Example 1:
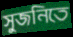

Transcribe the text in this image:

সুজনিতে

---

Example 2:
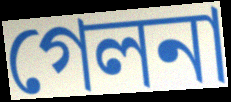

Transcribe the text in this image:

গেলনা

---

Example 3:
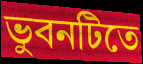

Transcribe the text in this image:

ভুবনটিতে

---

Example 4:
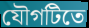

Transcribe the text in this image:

যৌগটিতে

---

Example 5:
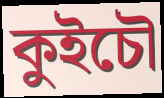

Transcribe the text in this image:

কুইচৌ